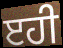
ੲਹੀ